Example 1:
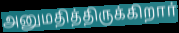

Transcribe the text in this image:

அனுமதித்திருக்கிறார்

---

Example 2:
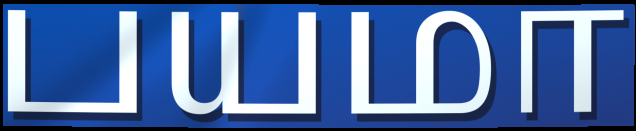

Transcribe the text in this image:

பயமா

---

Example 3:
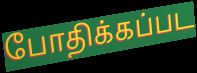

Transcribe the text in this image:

போதிக்கப்பட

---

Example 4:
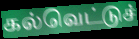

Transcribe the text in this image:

கல்வெட்டுச்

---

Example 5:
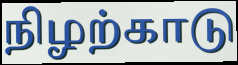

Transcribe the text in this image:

நிழற்காடு